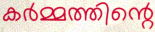
കർമ്മത്തിന്റെ